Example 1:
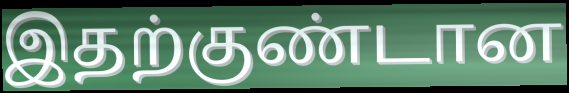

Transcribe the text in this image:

இதற்குண்டான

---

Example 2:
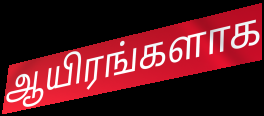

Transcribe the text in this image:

ஆயிரங்களாக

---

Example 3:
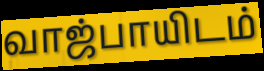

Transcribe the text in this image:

வாஜ்பாயிடம்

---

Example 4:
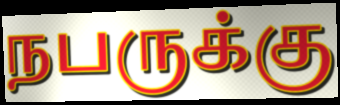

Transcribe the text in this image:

நபருக்கு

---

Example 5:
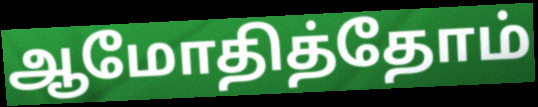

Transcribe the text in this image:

ஆமோதித்தோம்